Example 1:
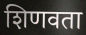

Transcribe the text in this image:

शिणवता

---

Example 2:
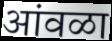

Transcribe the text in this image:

आंवळा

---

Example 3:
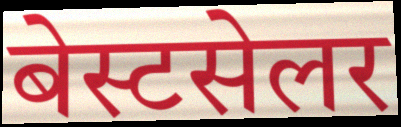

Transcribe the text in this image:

बेस्टसेलर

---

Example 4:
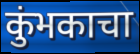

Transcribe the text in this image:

कुंभकाचा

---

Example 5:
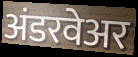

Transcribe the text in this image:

अंडरवेअर